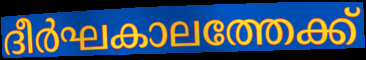
ദീർഘകാലത്തേക്ക്